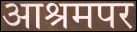
आश्रमपर